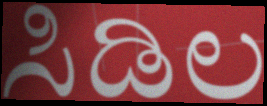
ಸಿಡಿಲ